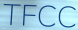
TFCC